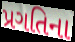
પ્રગતિના